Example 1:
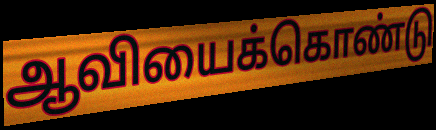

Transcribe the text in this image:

ஆவியைக்கொண்டு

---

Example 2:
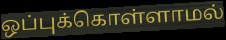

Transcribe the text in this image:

ஒப்புக்கொள்ளாமல்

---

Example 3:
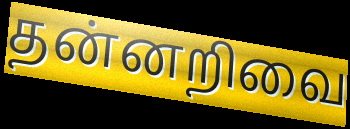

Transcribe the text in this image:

தன்னறிவை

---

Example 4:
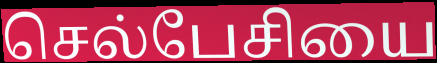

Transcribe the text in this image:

செல்பேசியை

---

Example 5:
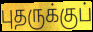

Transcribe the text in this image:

புதருக்குப்